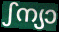
ഽന്യാ